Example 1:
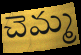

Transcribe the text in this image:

చెమ్మ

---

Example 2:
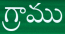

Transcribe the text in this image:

గ్రాము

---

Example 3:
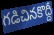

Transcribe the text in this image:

గడిచినకొద్దీ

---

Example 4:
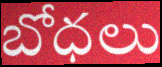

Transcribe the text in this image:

బోధలు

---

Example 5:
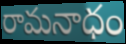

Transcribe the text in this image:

రామనాధం